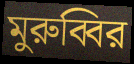
মুরুব্বির